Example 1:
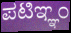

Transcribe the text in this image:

ಪಟಿಞ್ಞಂ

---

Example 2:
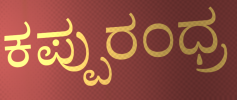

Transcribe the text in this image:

ಕಪ್ಪುರಂಧ್ರ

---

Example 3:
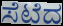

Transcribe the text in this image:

ಸೆಟೆದ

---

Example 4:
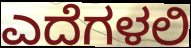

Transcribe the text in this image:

ಎದೆಗಳಲಿ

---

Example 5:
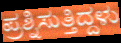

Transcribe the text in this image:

ಪ್ರಶ್ನಿಸುತ್ತಿದ್ದಳು